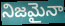
నిజమైనా